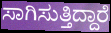
ಸಾಗಿಸುತ್ತಿದ್ದಾರೆ